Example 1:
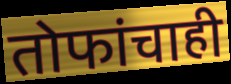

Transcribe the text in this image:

तोफांचाही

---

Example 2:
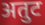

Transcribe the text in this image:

अतुट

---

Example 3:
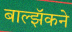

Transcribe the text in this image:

बाल्झॅकने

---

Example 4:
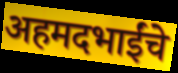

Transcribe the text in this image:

अहमदभाईंचे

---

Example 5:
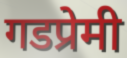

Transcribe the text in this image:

गडप्रेमी